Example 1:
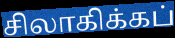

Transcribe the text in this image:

சிலாகிக்கப்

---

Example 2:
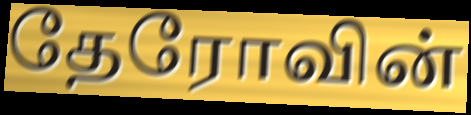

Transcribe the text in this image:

தேரோவின்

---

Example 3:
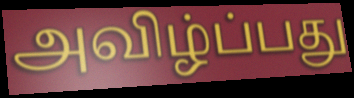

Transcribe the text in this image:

அவிழ்ப்பது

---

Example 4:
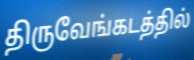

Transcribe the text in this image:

திருவேங்கடத்தில்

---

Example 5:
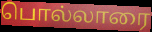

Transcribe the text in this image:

பொல்லாரை